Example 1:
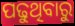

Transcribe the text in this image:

ପଢୁଥିବାରୁ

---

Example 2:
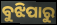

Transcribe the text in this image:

ବୁଝିପାରୁ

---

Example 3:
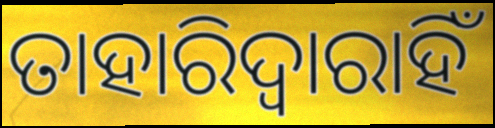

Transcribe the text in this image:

ତାହାରିଦ୍ୱାରାହିଁ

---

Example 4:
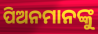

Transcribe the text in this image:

ପିଅନମାନଙ୍କୁ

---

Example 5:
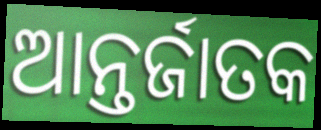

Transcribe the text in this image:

ଆନ୍ତର୍ଜାତକ